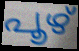
പൂഴ്